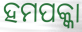
ହମପକ୍କା